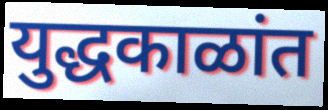
युद्धकाळांत